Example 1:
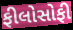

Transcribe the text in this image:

ફીલોસોફી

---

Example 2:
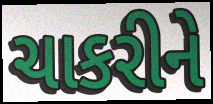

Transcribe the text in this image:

ચાકરીને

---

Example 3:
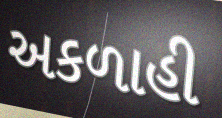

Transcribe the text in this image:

અકળાહી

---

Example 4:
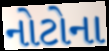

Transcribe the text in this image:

નોટોના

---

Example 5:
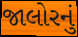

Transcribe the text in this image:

જાલોરનું